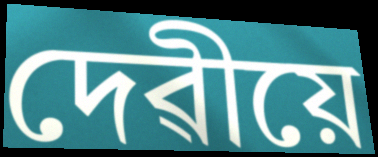
দেৱীয়ে